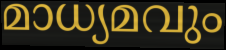
മാധ്യമവും